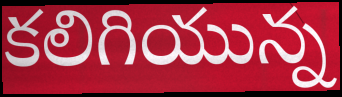
కలిగియున్న